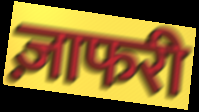
ज़ाफरी